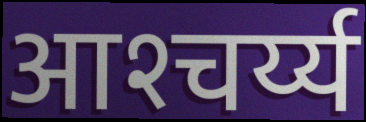
आश्चर्य्य